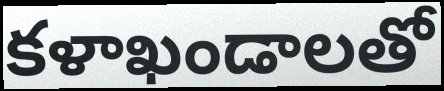
కళాఖండాలతో